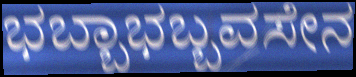
ಭಬ್ಬಾಭಬ್ಬವಸೇನ